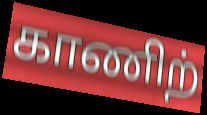
காணிற்